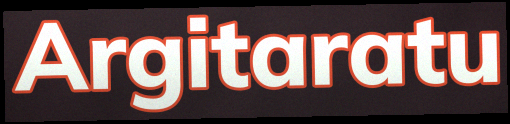
Argitaratu